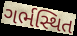
ગર્ભસ્થિત